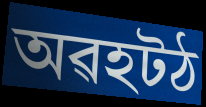
অৱহটঠ